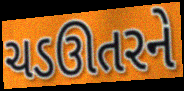
ચડઊતરને